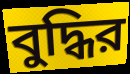
বুদ্ধির